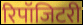
रिपॉजिटरी